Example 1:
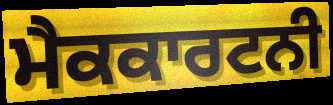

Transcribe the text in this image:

ਮੈਕਕਾਰਟਨੀ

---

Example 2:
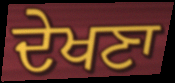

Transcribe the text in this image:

ਦੇਖਣਾ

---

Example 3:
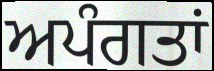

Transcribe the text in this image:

ਅਪੰਗਤਾਂ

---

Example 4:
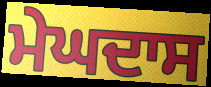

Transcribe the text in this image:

ਮੇਘਦਾਸ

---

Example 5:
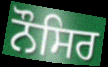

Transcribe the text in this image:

ਨੌਸਿਰ